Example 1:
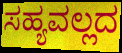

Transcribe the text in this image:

ಸಹ್ಯವಲ್ಲದ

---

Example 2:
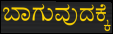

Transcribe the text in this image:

ಬಾಗುವುದಕ್ಕೆ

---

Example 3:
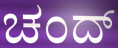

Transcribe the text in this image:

ಚಂದ್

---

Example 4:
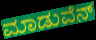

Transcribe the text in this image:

ಮಾಡುವೆನ್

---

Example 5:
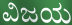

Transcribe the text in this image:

ವಿಜಯ